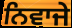
ਨਿਵਾਜੇ